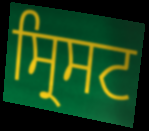
ਸ੍ਰਿਸਟ